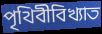
পৃথিবীবিখ্যাত